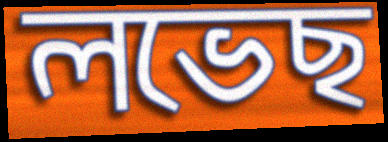
লভেছ